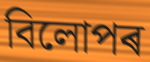
বিলোপৰ